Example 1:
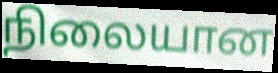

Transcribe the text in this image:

நிலையான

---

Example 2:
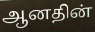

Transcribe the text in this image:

ஆனதின்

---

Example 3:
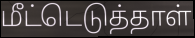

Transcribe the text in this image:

மீட்டெடுத்தாள்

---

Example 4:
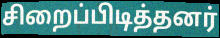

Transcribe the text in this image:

சிறைப்பிடித்தனர்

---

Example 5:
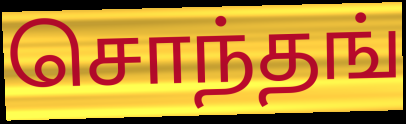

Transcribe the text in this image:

சொந்தங்